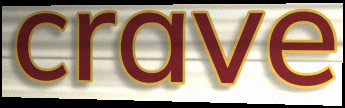
crave